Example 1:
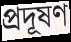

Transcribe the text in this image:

প্ৰদূষণ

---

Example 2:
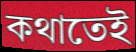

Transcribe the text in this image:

কথাতেই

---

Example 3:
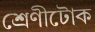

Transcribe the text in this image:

শ্ৰেণীটোক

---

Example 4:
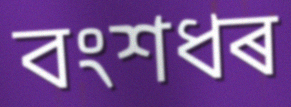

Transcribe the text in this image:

বংশধৰ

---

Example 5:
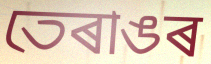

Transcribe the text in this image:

তেৰাঙৰ